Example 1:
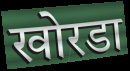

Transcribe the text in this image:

खोरडा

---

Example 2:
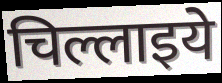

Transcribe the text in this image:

चिल्लाइये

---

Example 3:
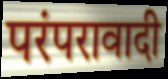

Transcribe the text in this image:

परंपरावादी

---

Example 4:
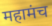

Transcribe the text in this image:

महामंच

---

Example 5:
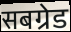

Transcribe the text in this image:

सबग्रेड